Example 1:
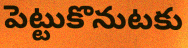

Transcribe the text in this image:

పెట్టుకొనుటకు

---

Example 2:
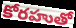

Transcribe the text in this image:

కోరహుతో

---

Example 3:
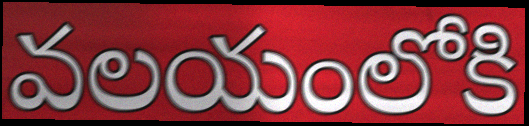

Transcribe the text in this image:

వలయంలోకి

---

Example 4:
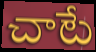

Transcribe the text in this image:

చాటే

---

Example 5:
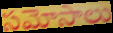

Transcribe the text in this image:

సమోసాలు